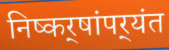
निष्कर्षांपर्यंत